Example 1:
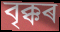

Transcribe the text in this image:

বৃক্কৰ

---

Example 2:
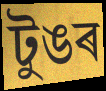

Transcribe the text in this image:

টুঙৰ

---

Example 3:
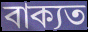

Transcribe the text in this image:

বাক্যত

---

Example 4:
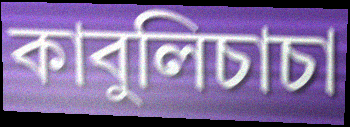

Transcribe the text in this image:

কাবুলিচাচা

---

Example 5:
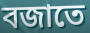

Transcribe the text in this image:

বজাতে